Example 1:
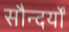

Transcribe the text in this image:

सौन्दर्यों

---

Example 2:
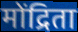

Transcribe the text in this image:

मोंद्रिता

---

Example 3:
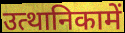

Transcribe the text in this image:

उत्थानिकामें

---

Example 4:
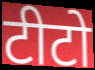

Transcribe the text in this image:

टीटो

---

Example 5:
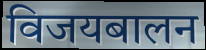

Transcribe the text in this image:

विजयबालन